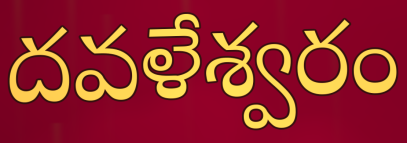
దవళేశ్వరం